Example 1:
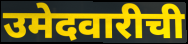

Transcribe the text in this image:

उमेदवारीची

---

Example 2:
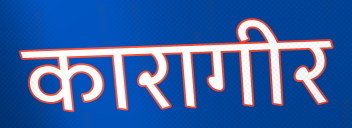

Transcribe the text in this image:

कारागीर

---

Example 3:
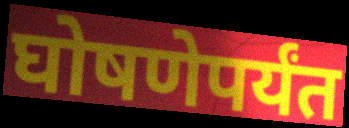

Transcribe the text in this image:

घोषणेपर्यंत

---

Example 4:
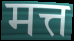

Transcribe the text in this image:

मत्त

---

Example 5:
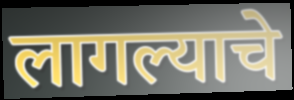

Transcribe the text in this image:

लागल्याचे